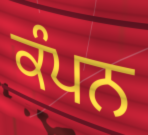
ਕੰਪਨ